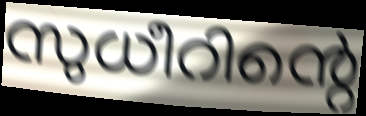
സുധീറിന്റെ